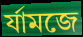
র্যামজে